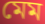
মেম